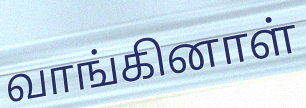
வாங்கினாள்